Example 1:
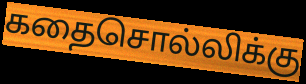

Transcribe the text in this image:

கதைசொல்லிக்கு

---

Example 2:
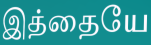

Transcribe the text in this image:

இத்தையே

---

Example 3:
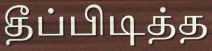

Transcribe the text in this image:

தீப்பிடித்த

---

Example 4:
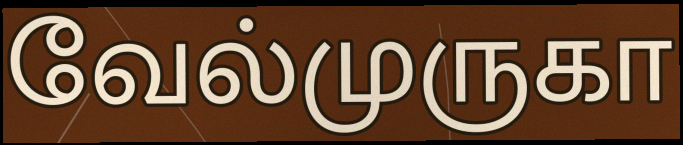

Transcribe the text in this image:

வேல்முருகா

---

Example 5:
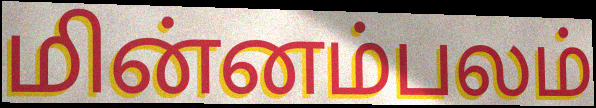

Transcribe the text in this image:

மின்னம்பலம்